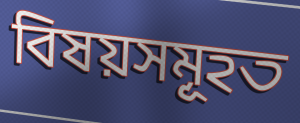
বিষয়সমূহত